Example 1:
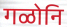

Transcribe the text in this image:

गळोनि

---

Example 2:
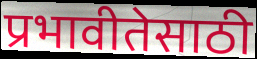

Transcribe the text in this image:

प्रभावीतेसाठी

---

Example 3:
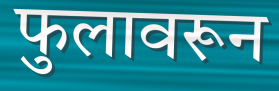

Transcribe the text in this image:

फुलावरून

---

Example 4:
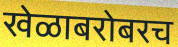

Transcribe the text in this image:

खेळाबरोबरच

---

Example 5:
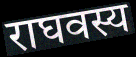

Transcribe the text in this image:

राघवस्य